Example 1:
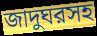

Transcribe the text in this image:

জাদুঘরসহ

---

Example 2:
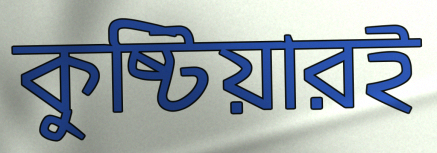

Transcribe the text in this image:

কুষ্টিয়ারই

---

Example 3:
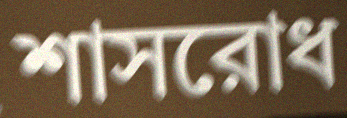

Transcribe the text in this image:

শাসরোধ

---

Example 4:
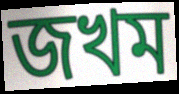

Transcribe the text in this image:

জখম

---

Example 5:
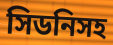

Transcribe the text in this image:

সিডনিসহ